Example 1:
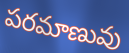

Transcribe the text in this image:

పరమాణువు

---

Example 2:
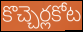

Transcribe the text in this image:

కొచ్చెర్లకోట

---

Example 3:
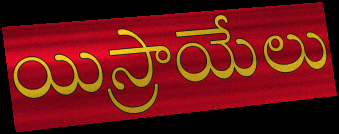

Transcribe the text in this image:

యిస్రాయేలు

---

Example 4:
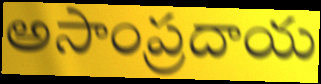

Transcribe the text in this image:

అసాంప్రదాయ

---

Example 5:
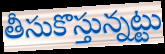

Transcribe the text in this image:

తీసుకొస్తున్నట్టు